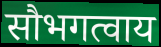
सौभगत्वाय